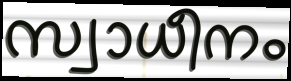
സ്വാധീനം